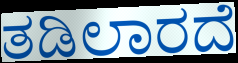
ತಡಿಲಾರದೆ